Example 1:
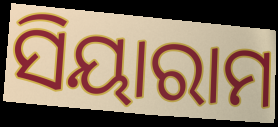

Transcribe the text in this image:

ସିୟାରାମ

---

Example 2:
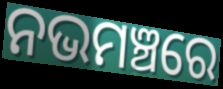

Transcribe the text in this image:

ନଭମଞ୍ଚରେ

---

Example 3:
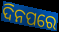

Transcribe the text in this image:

ଦିନପରେ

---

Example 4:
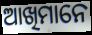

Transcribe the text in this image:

ଆଖିମାନେ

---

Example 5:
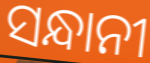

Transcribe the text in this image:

ସନ୍ଧାନୀ